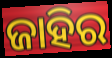
ଜାହିର